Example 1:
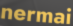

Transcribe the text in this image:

nermai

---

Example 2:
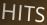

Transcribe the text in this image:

HITS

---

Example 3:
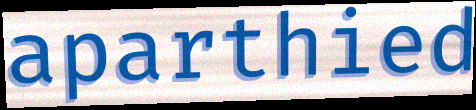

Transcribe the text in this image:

aparthied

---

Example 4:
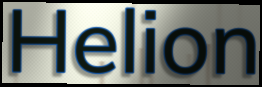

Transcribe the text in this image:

Helion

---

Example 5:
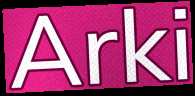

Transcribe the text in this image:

Arki